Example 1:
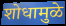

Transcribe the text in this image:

शोधामुळे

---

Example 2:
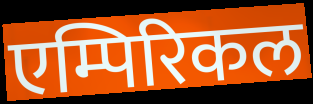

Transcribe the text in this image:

एम्पिरिकल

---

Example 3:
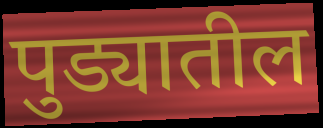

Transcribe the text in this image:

पुड्यातील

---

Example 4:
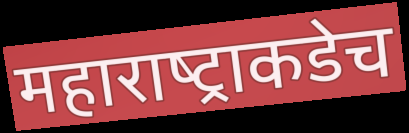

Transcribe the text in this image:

महाराष्ट्राकडेच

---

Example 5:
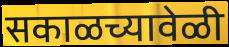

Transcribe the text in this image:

सकाळच्यावेळी